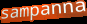
sampanna